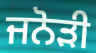
ਜਨੋੜੀ